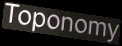
Toponomy